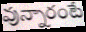
వున్నారంటే